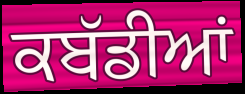
ਕਬੱਡੀਆਂ